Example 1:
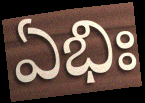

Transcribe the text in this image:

ఏభిః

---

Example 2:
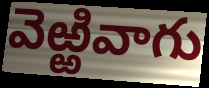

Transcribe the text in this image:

వెఱ్ఱివాగు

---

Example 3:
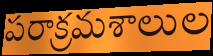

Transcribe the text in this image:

పరాక్రమశాలుల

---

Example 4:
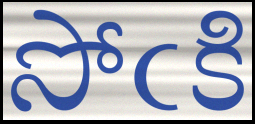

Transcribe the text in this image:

సోఁకి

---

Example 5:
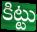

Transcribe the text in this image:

కిట్టు